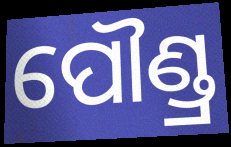
ପୌଣ୍ଡ୍ର